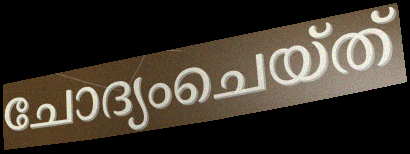
ചോദ്യംചെയ്ത്